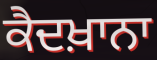
ਕੈਦਖ਼ਾਨਾ